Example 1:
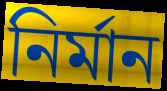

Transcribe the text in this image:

নিৰ্মান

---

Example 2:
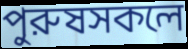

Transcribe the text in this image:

পুৰুষসকলে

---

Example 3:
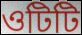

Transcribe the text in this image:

ওটিটি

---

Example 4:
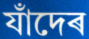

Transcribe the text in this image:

যাঁদেৰ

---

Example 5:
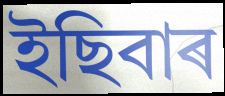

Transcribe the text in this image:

ইছিবাৰ